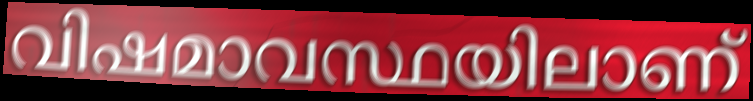
വിഷമാവസ്ഥയിലാണ്